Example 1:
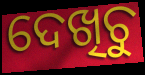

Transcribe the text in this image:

ଦେଖିଚୁ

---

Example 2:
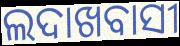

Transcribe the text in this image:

ଲଦାଖବାସୀ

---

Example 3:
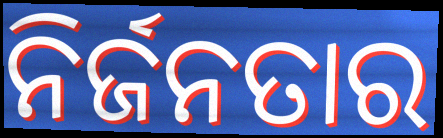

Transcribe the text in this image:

ନିର୍ଜନତାର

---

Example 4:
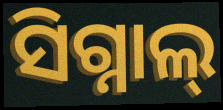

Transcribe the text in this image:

ସିଗ୍ନାଲ୍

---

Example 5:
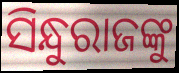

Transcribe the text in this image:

ସିନ୍ଧୁରାଜଙ୍କୁ